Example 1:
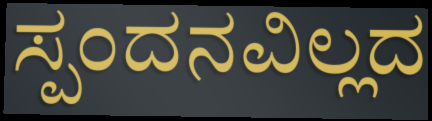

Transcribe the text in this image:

ಸ್ಪಂದನವಿಲ್ಲದ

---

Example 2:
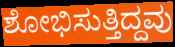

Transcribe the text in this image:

ಶೋಭಿಸುತ್ತಿದ್ದವು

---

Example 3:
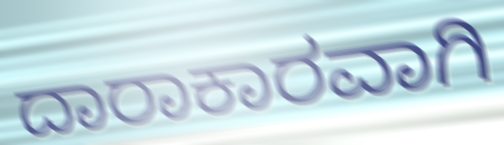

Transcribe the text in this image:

ದಾರಾಕಾರವಾಗಿ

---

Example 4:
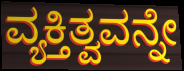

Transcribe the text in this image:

ವ್ಯಕ್ತಿತ್ವವನ್ನೇ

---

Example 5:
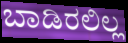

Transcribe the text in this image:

ಬಾಡಿರಲಿಲ್ಲ